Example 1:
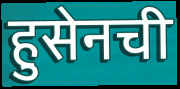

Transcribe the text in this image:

हुसेनची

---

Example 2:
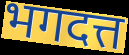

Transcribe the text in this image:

भगदत्त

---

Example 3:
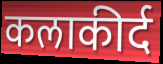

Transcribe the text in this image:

कलाकीर्द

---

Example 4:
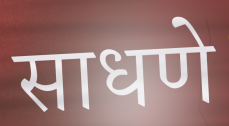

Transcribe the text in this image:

साधणे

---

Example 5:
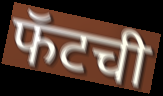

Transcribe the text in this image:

फॅटची